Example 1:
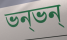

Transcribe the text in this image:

ভন্ভন্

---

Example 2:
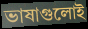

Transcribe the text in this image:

ভাষাগুলোই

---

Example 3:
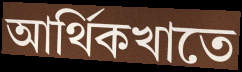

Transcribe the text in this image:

আর্থিকখাতে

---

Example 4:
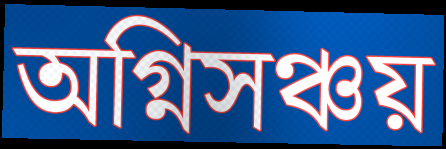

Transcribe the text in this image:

অগ্নিসঞ্চয়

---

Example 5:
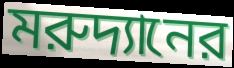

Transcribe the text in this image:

মরুদ্যানের